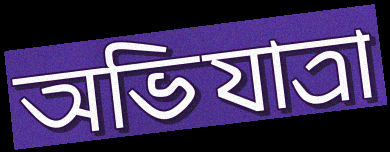
অভিযাত্রা